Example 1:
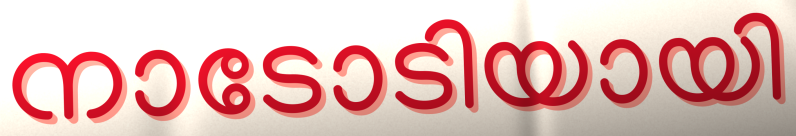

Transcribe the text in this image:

നാടോടിയായി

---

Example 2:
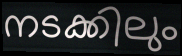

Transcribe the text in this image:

നടക്കിലും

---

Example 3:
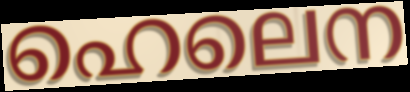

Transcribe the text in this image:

ഹെലെന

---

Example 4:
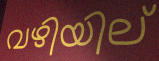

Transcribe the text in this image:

വഴിയില്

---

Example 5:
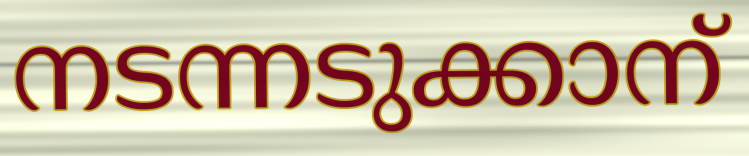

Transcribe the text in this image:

നടന്നടുക്കാന്